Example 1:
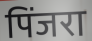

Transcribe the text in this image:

पिंजरा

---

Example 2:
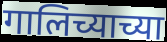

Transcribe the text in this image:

गालिच्याच्या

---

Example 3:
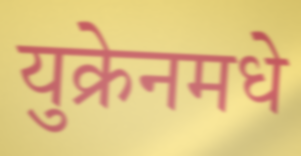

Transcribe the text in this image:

युक्रेनमधे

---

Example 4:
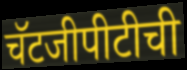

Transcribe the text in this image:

चॅटजीपीटीची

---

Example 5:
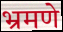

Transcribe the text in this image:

भ्रमणे